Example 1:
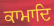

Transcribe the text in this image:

ਕਾਮਾਦਿ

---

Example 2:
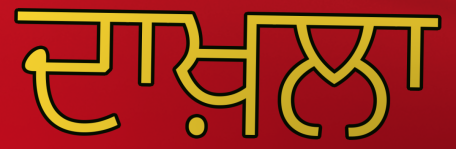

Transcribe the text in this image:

ਦਾਖ਼ਲਾ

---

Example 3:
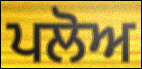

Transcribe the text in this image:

ਪਲੋਅ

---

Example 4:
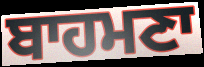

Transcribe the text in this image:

ਬਾਹਮਣਾ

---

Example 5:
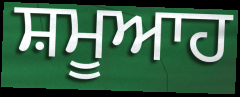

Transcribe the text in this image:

ਸ਼ਮੂਆਹ